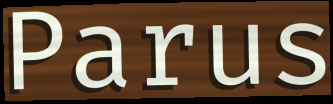
Parus